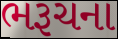
ભરૂચના